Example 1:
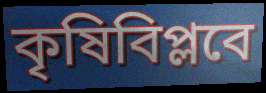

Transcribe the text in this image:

কৃষিবিপ্লবে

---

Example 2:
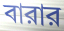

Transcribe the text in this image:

বারার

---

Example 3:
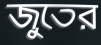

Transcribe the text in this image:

জুতের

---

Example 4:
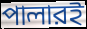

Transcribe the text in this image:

পালারই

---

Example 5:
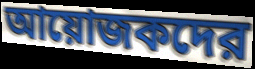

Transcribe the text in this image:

আয়োজকদের